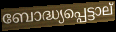
ബോദ്ധ്യപ്പെട്ടാല്